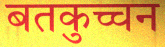
बतकुच्चन